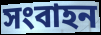
সংবাহন